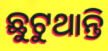
ଛୁଟୁଥାନ୍ତି